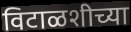
विटाळशीच्या